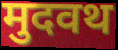
मुदवथ